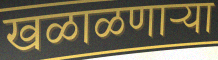
खळाळणाऱ्या